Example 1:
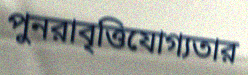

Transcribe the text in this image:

পুনরাবৃত্তিযোগ্যতার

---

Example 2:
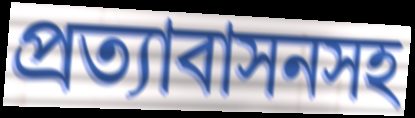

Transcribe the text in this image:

প্রত্যাবাসনসহ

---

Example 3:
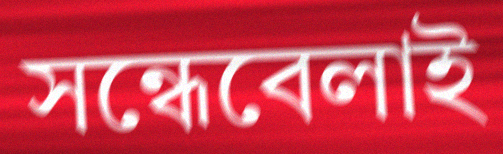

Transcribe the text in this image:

সন্ধেবেলাই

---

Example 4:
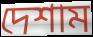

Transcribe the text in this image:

দেশাম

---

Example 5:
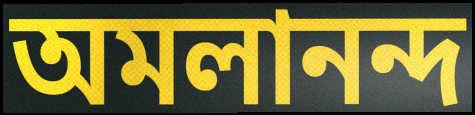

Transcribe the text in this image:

অমলানন্দ